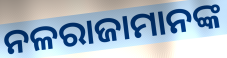
ନଳରାଜାମାନଙ୍କ